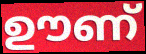
ഊണ്